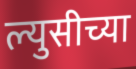
ल्युसीच्या